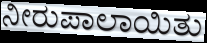
ನೀರುಪಾಲಾಯಿತು